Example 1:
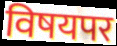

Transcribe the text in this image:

विषयपर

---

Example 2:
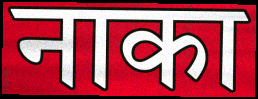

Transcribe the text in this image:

नाका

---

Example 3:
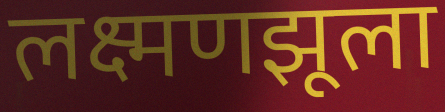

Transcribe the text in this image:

लक्ष्मणझूला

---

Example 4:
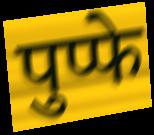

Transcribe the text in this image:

पुप्फे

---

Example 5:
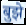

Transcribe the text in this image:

बुझे